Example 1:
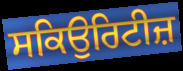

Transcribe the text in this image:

ਸਕਿਉਰਿਟੀਜ਼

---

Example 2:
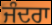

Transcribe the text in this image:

ਜੰਦਰਾ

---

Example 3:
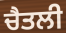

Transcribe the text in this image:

ਚੈਤਲੀ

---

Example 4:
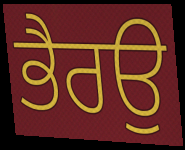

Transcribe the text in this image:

ਭੈਰਉ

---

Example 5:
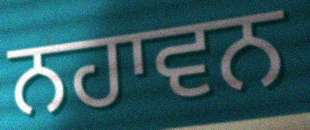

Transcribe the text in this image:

ਨਹਾਵਨ